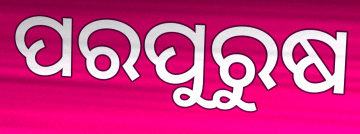
ପରପୁରୁଷ